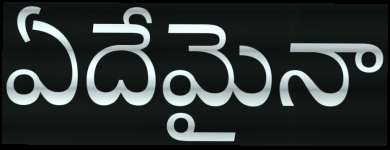
ఏదేమైనా